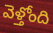
వెళ్తోంది